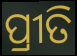
ପ୍ରୀତି